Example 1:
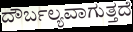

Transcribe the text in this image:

ದೌರ್ಬಲ್ಯವಾಗುತ್ತದೆ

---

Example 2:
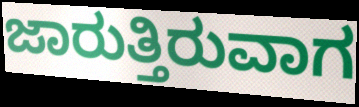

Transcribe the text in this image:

ಜಾರುತ್ತಿರುವಾಗ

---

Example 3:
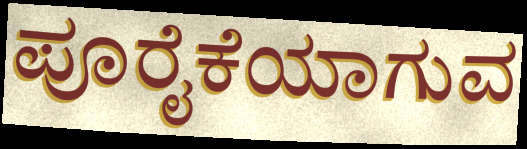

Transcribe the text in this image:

ಪೂರೈಕೆಯಾಗುವ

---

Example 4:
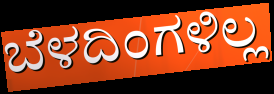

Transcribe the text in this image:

ಬೆಳದಿಂಗಳಿಲ್ಲ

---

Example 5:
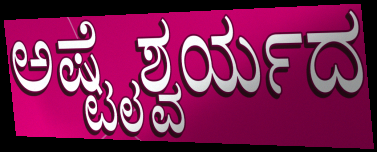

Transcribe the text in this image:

ಅಷ್ಟೈಶ್ವರ್ಯದ